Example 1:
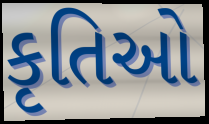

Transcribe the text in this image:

કૃતિઓ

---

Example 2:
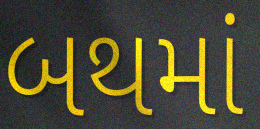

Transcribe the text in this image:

બથમાં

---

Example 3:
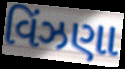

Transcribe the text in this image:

વિંઝણા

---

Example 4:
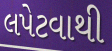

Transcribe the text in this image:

લપેટવાથી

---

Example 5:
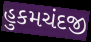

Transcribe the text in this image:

હુકમચંદજી